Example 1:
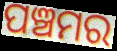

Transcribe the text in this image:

ପଞ୍ଚମର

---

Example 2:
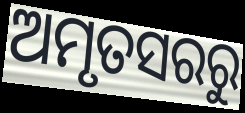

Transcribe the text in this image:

ଅମୃତସରରୁ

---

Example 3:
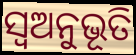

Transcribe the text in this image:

ସ୍ୱଅନୁଭୂତି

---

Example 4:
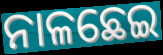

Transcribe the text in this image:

ନାଳଛେଇ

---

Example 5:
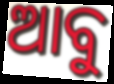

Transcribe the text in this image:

ଆବୁ